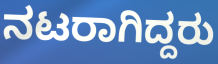
ನಟರಾಗಿದ್ದರು